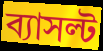
ব্যাসল্ট